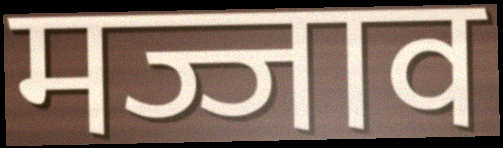
मज्जाव